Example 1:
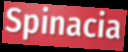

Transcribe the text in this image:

Spinacia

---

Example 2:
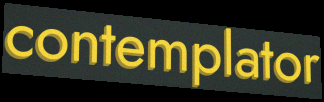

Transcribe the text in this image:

contemplator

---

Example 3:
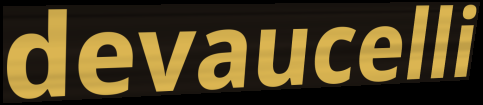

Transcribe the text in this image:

devaucelli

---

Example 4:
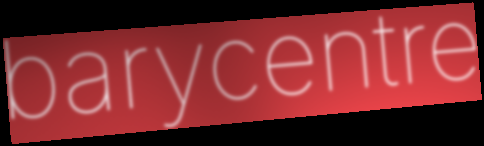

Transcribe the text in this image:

barycentre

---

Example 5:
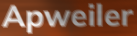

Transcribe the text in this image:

Apweiler